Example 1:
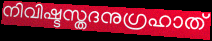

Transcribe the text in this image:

നിവിഷ്ടസ്തദനുഗ്രഹാത്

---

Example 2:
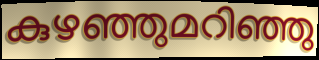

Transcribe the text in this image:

കുഴഞ്ഞുമറിഞ്ഞു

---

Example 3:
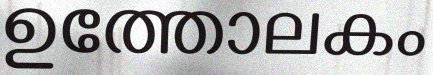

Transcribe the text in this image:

ഉത്തോലകം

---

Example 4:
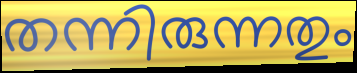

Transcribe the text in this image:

തന്നിരുന്നതും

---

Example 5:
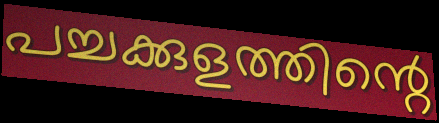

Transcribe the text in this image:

പച്ചക്കുളത്തിന്റെ